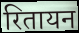
रितायन